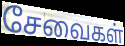
சேவைகள்